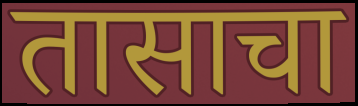
तासाचा